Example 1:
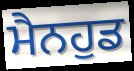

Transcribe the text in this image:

ਮੈਨਹੁਡ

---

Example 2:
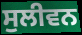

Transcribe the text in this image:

ਸੁਲੀਵਨ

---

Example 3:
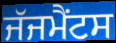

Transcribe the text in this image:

ਜੱਜਮੈਂਟਸ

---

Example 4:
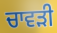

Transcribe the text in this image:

ਚਾਵੜੀ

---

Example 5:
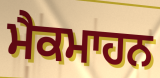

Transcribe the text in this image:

ਮੈਕਮਾਹਨ